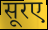
सूरए